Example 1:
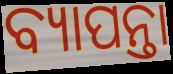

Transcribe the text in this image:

ବ୍ୟାପନ୍ତା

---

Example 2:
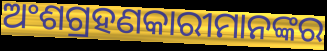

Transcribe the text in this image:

ଅଂଶଗ୍ରହଣକାରୀମାନଙ୍କର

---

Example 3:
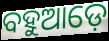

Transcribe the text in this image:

ବହୁଆଡ଼େ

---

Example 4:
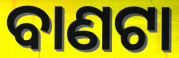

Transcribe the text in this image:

ବାଣଟା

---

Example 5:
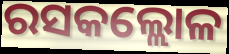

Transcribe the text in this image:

ରସକଲ୍ଲୋଳ